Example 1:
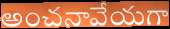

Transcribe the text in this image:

అంచనావేయగా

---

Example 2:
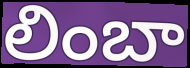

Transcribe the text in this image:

లింబా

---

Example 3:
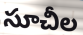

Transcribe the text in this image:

సూచీల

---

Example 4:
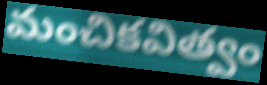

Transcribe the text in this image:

మంచికవిత్వం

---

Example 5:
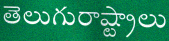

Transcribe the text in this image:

తెలుగురాష్ట్రాలు